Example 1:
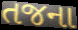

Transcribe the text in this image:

તજના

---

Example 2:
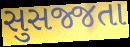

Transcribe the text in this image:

સુસજ્જતા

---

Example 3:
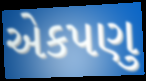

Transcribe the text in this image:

એકપણુ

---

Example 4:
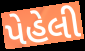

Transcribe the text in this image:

પેહેલી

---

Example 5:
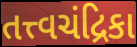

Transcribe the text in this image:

તત્ત્વચંદ્રિકા